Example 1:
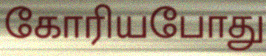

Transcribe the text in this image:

கோரியபோது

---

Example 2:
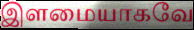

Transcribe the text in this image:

இளமையாகவே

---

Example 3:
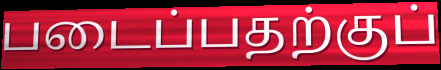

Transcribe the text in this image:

படைப்பதற்குப்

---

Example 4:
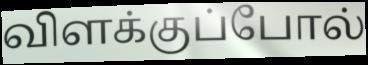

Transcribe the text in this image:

விளக்குப்போல்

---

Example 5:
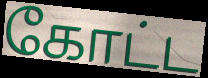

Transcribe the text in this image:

கோட்ட